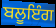
ਬਲੂਇੰਗ